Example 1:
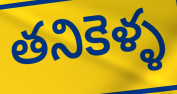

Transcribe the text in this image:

తనికెళ్ళ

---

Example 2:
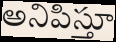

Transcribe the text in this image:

అనిపిస్తూ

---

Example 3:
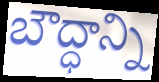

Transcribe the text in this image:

బౌద్ధాన్ని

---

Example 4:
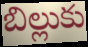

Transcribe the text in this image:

బిల్లుకు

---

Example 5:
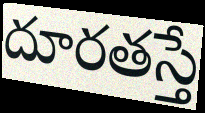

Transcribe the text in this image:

దూరతస్తే